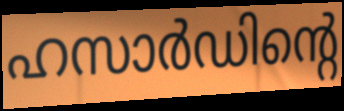
ഹസാർഡിന്റെ